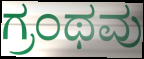
ಗ್ರಂಥವು